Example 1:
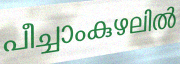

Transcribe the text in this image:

പീച്ചാംകുഴലിൽ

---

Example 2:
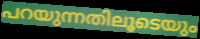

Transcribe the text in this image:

പറയുന്നതിലൂടെയും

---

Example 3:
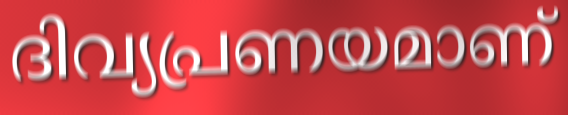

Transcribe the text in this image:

ദിവ്യപ്രണയമാണ്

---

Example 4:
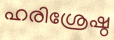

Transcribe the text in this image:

ഹരിശ്രേഷ്ഠ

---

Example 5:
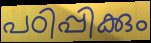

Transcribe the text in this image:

പഠിപ്പിക്കും